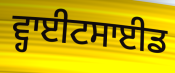
ਵ੍ਹਾਈਟਸਾਈਡ